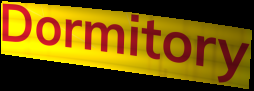
Dormitory